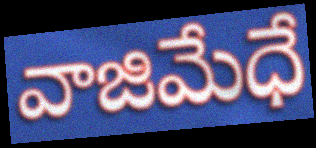
వాజిమేధే